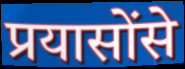
प्रयासोंसे